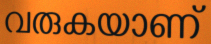
വരുകയാണ്